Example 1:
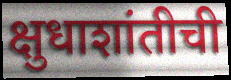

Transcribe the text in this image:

क्षुधाशांतीची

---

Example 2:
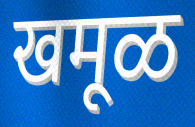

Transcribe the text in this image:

खमूळ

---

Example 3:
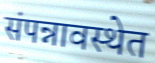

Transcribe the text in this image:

संपन्नावस्थेत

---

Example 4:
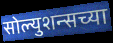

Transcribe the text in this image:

सोल्युशन्सच्या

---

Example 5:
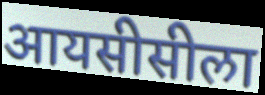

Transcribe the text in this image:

आयसीसीला